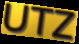
UTZ